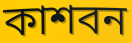
কাশবন